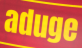
aduge